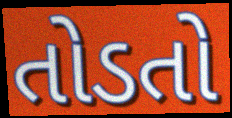
તોડતો